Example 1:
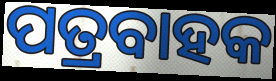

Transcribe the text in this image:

ପତ୍ରବାହକ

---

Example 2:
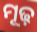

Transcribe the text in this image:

ମୂଢ଼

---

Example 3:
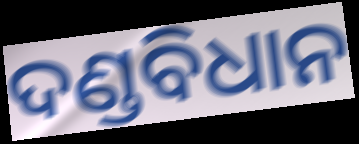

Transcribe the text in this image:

ଦଣ୍ଡବିଧାନ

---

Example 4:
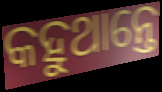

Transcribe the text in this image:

କହୁଥାନ୍ତେ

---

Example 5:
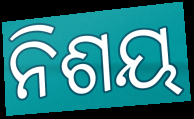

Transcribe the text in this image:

ନିଶୟ